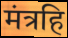
मंत्रहि